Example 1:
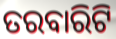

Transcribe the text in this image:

ତରବାରିଟି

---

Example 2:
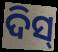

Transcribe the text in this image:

ଦିସ୍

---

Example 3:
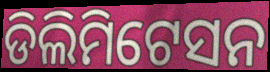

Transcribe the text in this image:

ଡିଲିମିଟେସନ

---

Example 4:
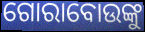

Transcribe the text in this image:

ଗୋରାବୋଉଙ୍କୁ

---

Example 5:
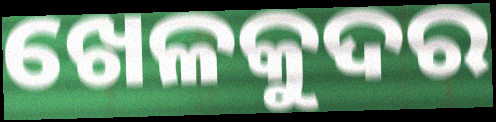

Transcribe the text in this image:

ଖେଳକୁଦର